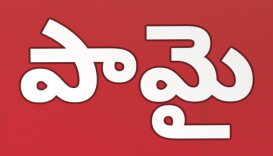
పామై